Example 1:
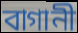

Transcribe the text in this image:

বাগানী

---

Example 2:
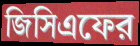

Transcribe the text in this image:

জিসিএফের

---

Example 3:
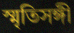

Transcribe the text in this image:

স্মৃতিসঙ্গী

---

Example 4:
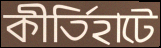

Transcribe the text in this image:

কীর্তিহাটে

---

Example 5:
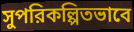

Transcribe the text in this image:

সুপরিকল্পিতভাবে